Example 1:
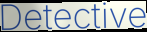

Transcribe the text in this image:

Detective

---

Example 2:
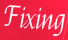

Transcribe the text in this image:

Fixing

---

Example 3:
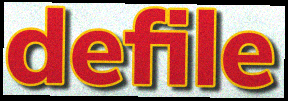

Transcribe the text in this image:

defile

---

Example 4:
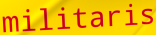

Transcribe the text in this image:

militaris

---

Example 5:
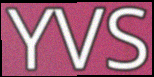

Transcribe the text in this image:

YVS